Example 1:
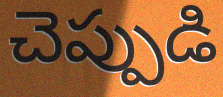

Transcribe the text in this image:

చెప్పుడి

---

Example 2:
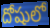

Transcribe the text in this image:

దోషులో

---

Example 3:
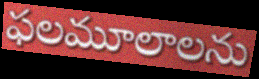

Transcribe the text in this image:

ఫలమూలాలను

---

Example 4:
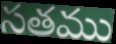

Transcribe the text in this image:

సతము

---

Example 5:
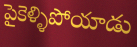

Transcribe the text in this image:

పైకెళ్ళిపోయాడు